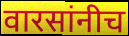
वारसांनीच